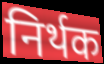
निर्थक